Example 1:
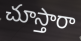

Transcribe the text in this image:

చూస్తారా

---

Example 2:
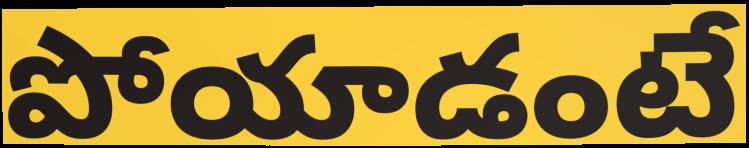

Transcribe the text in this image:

పోయాడంటే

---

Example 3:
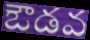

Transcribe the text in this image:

ఔడవ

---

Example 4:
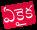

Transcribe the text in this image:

ఏకైక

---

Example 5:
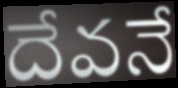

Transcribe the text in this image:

దేవనే